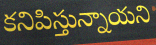
కనిపిస్తున్నాయని